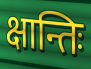
क्षान्तिः